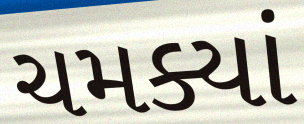
ચમક્યાં